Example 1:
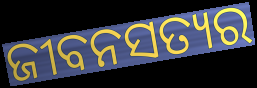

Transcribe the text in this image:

ଜୀବନସତ୍ୟର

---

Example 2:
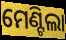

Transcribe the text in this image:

ମେଣ୍ଟିଲା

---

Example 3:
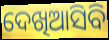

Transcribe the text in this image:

ଦେଖିଆସିବି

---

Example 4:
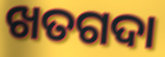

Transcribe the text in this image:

ଖତଗଦା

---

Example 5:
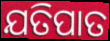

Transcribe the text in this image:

ଯତିପାତ